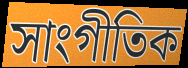
সাংগীতিক